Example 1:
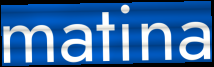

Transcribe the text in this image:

matina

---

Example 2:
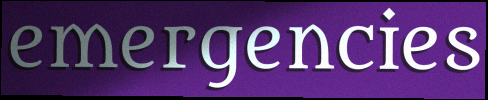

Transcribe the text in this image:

emergencies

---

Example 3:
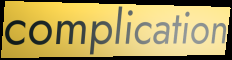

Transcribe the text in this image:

complication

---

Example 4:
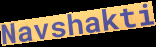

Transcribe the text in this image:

Navshakti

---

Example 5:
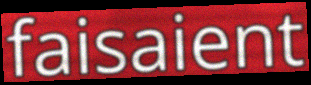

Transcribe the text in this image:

faisaient